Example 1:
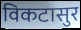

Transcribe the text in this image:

विकटासुर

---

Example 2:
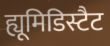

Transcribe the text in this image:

ह्यूमिडिस्टैट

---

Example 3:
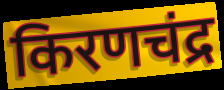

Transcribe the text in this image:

किरणचंद्र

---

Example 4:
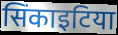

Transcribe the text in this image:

सिंकाइटिया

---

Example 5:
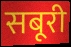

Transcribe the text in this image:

सबूरी